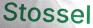
Stossel